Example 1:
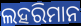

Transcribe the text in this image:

ଲହରିମାନ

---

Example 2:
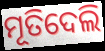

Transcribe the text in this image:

ମୂତିଦେଲି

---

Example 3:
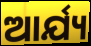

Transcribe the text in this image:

ଆର୍ଯ୍ୟ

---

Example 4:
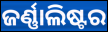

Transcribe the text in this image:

ଜର୍ଣ୍ଣାଲିଷ୍ଟର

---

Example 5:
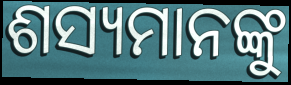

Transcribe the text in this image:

ଶସ୍ୟମାନଙ୍କୁ